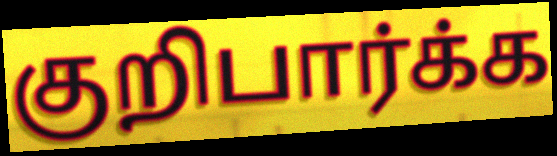
குறிபார்க்க